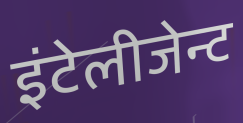
इंटेलीजेन्ट